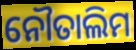
ନୌତାଲିମ